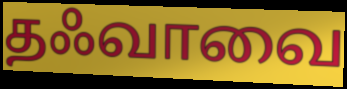
தஃவாவை